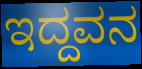
ಇದ್ದವನ